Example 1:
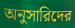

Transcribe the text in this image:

অনুসারিদের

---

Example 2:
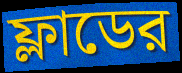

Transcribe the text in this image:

ফ্লাডের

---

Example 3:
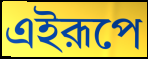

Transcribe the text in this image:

এইরূপে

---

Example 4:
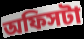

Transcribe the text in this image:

অফিসটা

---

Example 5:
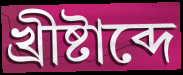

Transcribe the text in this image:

খ্রীষ্টাব্দে